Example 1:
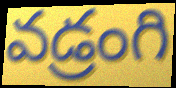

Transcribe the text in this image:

వడ్రంగి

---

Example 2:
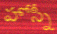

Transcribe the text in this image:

హోస్నీ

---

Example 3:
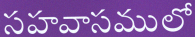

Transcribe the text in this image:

సహవాసములో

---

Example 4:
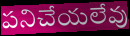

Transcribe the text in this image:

పనిచేయలేవు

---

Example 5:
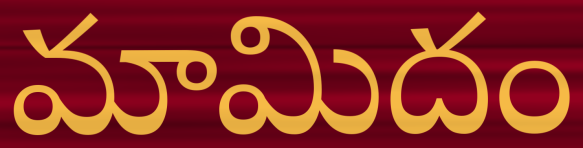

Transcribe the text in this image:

మామిదం